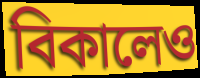
বিকালেও